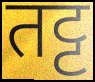
तट्ट